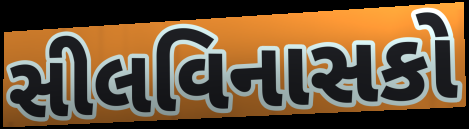
સીલવિનાસકો